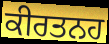
ਕੀਰਤਨਹ